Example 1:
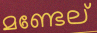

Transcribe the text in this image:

മണ്ടേല്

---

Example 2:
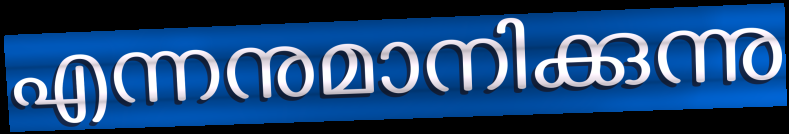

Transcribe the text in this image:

എന്നനുമാനിക്കുന്നു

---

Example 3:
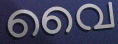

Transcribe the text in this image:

വൈ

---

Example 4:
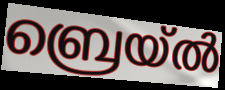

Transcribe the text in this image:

ബ്രെയ്ൽ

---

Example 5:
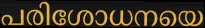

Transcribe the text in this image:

പരിശോധനയെ